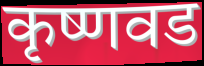
कृष्णवड